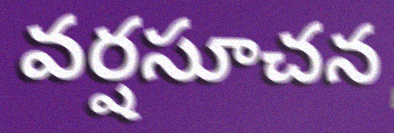
వర్షసూచన